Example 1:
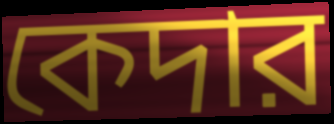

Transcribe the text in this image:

কেদার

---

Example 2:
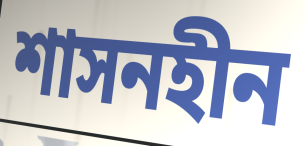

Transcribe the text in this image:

শাসনহীন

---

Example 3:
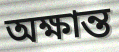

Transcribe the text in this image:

অক্ষান্ত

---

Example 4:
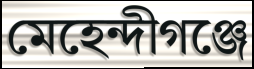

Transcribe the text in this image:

মেহেন্দীগঞ্জে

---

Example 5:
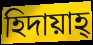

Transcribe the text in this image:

হিদায়াহ্